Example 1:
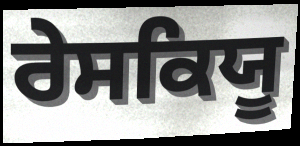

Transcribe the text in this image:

ਰੇਸਕਿਯੂ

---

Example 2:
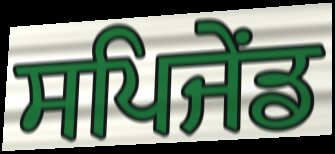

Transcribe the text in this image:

ਸਪਿਜੇਂਡ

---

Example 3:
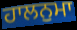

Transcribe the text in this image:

ਹਾਲਨੁਮਾ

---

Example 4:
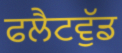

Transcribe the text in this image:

ਫਲੈਟਵੁੱਡ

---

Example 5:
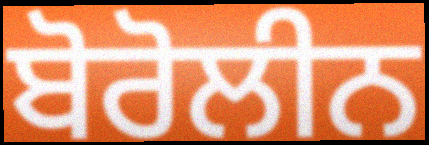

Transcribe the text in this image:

ਬੋਰੋਲੀਨ